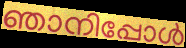
ഞാനിപ്പോൾ